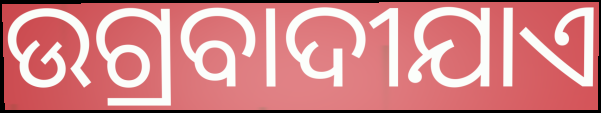
ଉଗ୍ରବାଦୀଯାଏ